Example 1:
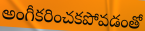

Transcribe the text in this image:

అంగీకరించకపోవడంతో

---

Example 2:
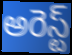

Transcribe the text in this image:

అరెస్ట్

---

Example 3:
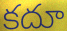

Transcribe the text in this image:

కదూ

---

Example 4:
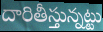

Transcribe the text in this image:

దారితీస్తున్నట్టు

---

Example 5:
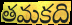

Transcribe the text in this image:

తమకది